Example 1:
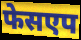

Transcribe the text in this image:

फेसएप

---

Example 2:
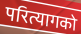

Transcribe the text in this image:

परित्यागको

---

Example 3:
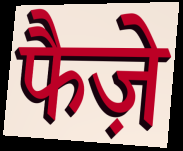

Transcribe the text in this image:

फैज़े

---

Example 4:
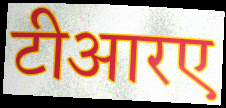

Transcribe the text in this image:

टीआरए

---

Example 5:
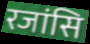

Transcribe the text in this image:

रजांसि